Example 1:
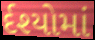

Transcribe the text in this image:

ર્દશ્યોમાં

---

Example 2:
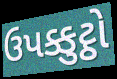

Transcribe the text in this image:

ઉપક્કુટ્ઠો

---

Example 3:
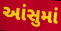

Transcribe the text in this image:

આંસુમાં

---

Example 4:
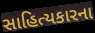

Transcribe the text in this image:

સાહિત્યકારના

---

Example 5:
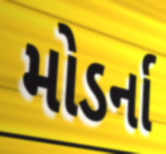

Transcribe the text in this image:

મોડર્ના